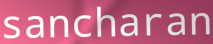
sancharan